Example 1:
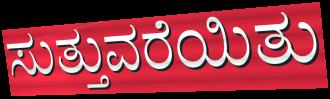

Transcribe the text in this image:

ಸುತ್ತುವರೆಯಿತು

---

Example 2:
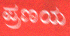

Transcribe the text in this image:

ಪ್ರಣಯ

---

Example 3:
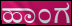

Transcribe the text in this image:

ಹಾಂಗ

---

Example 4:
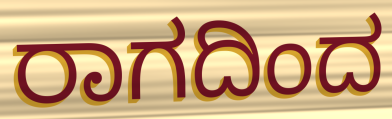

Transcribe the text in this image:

ರಾಗದಿಂದ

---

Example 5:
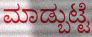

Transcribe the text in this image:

ಮಾಡ್ಬುಟ್ಟೆ